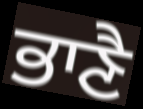
ਭਾਣੈ